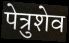
पेत्रुशेव